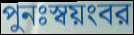
পুনঃস্বয়ংবর